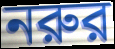
নরুর